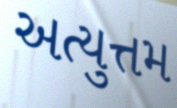
અત્યુત્તમ